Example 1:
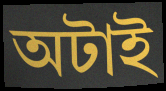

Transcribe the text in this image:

অটাই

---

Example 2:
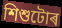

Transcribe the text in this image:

শিশুটোৰ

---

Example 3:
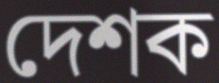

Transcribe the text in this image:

দেশক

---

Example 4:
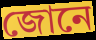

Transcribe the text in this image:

জোনে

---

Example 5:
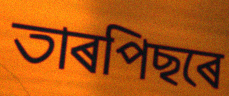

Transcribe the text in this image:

তাৰপিছৰে